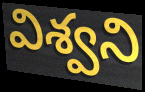
విశ్వని